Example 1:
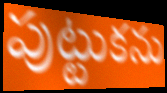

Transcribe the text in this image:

పుట్టుకను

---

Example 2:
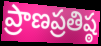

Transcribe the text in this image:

ప్రాణప్రతిష్ఠ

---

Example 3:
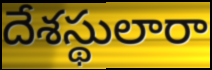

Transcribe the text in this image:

దేశస్థులారా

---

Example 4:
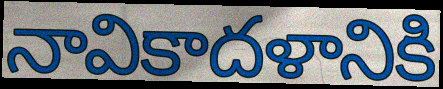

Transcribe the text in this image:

నావికాదళానికి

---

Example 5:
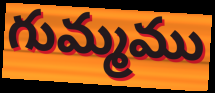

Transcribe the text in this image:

గుమ్మము